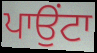
ਪਾਉੰਟਾ